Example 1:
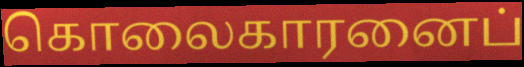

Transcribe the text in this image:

கொலைகாரனைப்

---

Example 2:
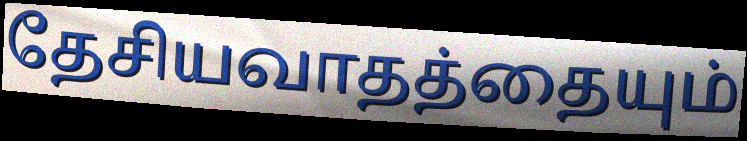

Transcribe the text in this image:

தேசியவாதத்தையும்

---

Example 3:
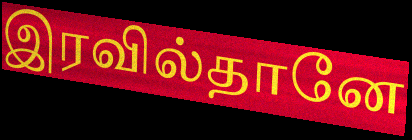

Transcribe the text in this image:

இரவில்தானே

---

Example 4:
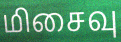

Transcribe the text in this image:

மிசைவு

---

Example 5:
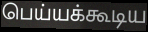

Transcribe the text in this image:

பெய்யக்கூடிய